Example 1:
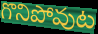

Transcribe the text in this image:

గొనిపోవుట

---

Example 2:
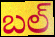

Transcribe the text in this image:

బల్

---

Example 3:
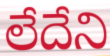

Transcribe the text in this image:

లేదేని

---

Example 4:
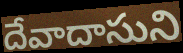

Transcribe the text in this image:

దేవాదాసుని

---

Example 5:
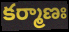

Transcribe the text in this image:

కర్మాణః